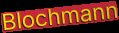
Blochmann